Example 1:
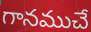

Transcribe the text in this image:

గానముచే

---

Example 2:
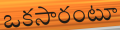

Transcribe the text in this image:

ఒకసారంటూ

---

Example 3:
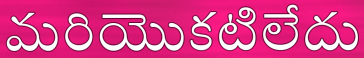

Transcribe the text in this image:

మరియొకటిలేదు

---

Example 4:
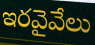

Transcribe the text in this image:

ఇరవైవేలు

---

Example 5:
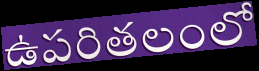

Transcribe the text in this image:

ఉపరితలంలో